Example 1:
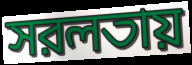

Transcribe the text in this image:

সরলতায়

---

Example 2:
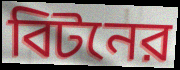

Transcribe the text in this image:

বিটনের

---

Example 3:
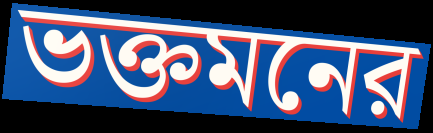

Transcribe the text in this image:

ভক্তমনের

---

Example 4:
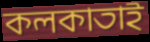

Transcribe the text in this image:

কলকাতাই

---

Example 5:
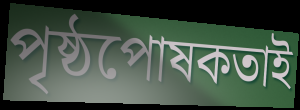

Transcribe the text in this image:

পৃষ্ঠপোষকতাই